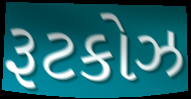
રૂટકોઝ